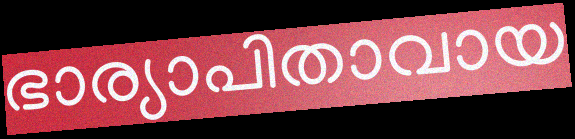
ഭാര്യാപിതാവായ